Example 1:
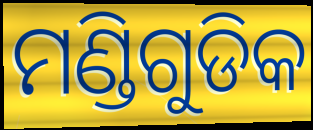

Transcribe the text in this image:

ମଣ୍ଡିଗୁଡିକ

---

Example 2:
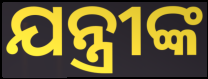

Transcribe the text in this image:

ଯନ୍ତ୍ରୀଙ୍କ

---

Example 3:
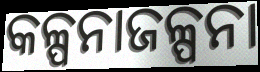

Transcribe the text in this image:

କଳ୍ପନାଜଳ୍ପନା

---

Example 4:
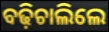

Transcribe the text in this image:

ବଢ଼ିଚାଲିଲେ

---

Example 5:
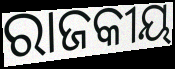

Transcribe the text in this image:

ରାଜକୀୟ